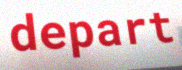
depart